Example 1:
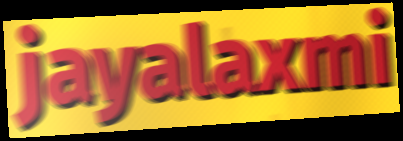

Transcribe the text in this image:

jayalaxmi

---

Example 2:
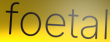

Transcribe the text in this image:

foetal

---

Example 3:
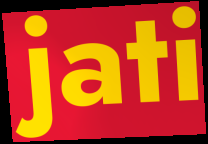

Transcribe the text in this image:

jati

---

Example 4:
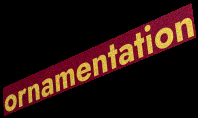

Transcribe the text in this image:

ornamentation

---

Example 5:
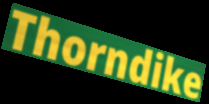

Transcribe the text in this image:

Thorndike